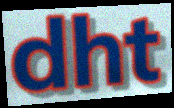
dht